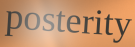
posterity